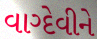
વાગ્દેવીને